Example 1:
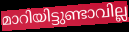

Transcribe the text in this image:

മാറിയിട്ടുണ്ടാവില്ല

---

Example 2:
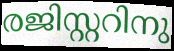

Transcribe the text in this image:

രജിസ്റ്ററിനു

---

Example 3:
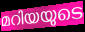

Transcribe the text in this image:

മറിയയുടെ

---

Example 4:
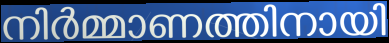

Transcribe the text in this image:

നിർമ്മാണത്തിനായി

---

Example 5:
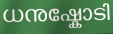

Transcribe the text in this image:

ധനുഷ്കോടി